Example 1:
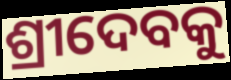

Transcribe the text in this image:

ଶ୍ରୀଦେବକୁ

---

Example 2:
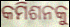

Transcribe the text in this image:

କମିଶନକୁ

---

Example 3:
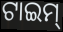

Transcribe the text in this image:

ଟାଇମ୍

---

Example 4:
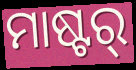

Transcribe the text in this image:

ମାଷ୍ଟର୍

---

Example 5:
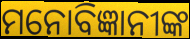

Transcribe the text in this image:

ମନୋବିଜ୍ଞାନୀଙ୍କ